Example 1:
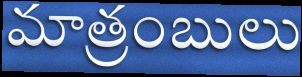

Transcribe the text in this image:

మాత్రంబులు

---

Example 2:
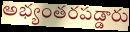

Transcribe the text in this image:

అభ్యంతరపడ్డారు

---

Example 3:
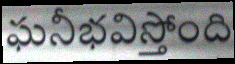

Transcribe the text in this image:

ఘనీభవిస్తోంది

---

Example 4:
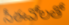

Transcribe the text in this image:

సీఈవోలతో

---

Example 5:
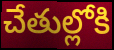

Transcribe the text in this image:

చేతుల్లోకి